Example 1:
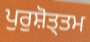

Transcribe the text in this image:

ਪੁਰੁਸ਼ੋਤ੍ਤਮ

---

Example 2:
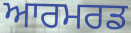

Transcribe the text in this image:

ਆਰਮਰਡ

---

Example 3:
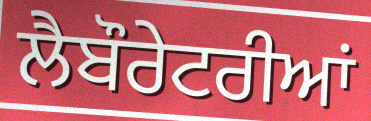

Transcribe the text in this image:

ਲੈਬੌਰੇਟਰੀਆਂ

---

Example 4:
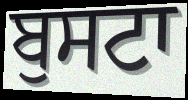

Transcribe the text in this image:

ਬੁਸਟਾ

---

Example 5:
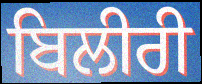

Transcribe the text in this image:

ਬਿਲੀਰੀ